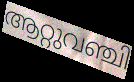
ആറ്റുവഞ്ചി